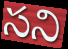
సని